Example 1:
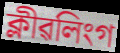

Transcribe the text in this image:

ক্লীৱলিংগ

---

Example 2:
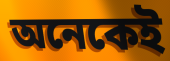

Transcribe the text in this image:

অনেকেই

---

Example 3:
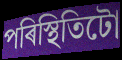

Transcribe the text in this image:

পৰিস্থিতিটো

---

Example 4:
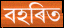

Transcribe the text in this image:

বহৰিত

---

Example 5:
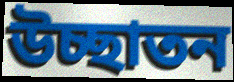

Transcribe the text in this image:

উচ্ছাতন